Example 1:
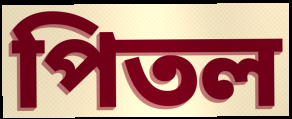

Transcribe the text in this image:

পিতল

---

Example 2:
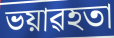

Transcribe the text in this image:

ভয়াৱহতা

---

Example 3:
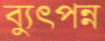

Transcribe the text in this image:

ব্যুৎপন্ন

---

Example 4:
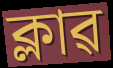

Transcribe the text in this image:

ক্লাৱ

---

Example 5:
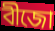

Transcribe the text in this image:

বীজো